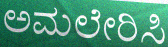
ಅಮಲೇರಿಸಿ